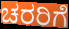
ಚರರಿಗೆ